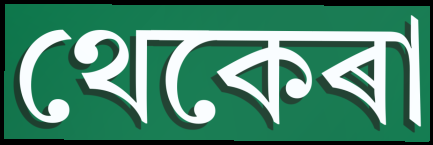
থেকেৰা